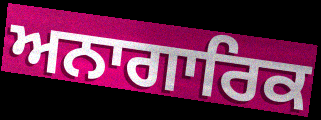
ਅਨਾਗਾਰਿਕ